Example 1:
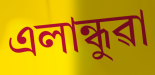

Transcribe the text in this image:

এলান্ধুৱা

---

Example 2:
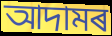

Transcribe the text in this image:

আদামৰ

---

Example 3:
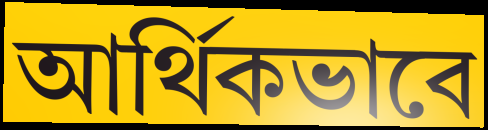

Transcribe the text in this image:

আৰ্থিকভাবে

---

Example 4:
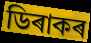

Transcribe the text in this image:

ডিৰাকৰ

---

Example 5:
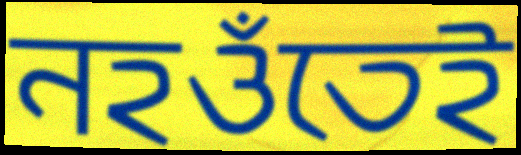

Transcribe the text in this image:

নহওঁতেই